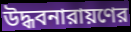
উদ্ধবনারায়ণের